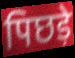
पिछड़े